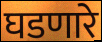
घडणारे